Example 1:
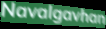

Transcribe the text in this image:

Navalgavhan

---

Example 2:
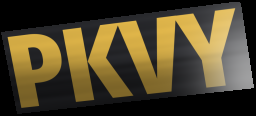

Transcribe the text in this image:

PKVY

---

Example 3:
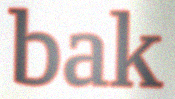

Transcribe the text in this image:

bak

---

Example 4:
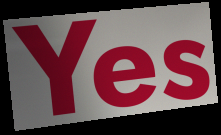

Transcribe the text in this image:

Yes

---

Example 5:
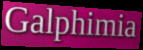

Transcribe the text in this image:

Galphimia